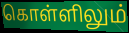
கொள்ளிலும்